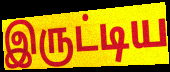
இருட்டிய